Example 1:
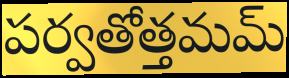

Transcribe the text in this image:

పర్వతోత్తమమ్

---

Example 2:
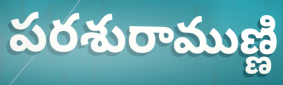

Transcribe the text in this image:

పరశురాముణ్ణి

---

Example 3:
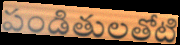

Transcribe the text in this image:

పండితులతోటి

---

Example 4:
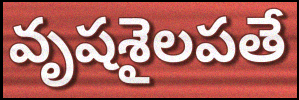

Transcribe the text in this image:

వృషశైలపతే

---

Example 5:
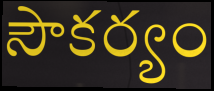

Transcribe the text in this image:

సౌకర్యం